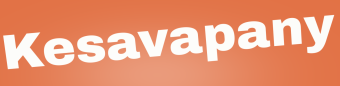
Kesavapany